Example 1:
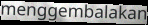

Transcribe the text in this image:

menggembalakan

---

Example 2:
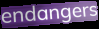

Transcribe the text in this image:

endangers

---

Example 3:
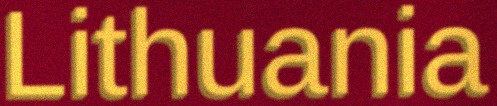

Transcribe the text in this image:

Lithuania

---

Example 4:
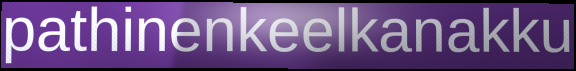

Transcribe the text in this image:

pathinenkeelkanakku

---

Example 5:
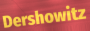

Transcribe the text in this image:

Dershowitz